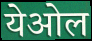
येओल